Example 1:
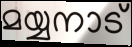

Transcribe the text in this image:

മയ്യനാട്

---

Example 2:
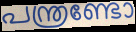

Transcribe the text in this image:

പന്ത്രണ്ടോ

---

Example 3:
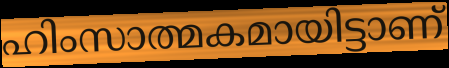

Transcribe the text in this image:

ഹിംസാത്മകമായിട്ടാണ്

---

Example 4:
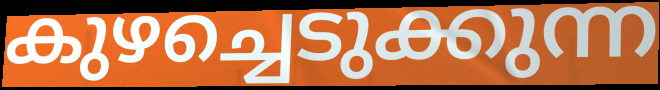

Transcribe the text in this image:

കുഴച്ചെടുക്കുന്ന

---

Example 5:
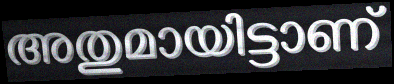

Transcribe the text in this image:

അതുമായിട്ടാണ്